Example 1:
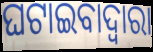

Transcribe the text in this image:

ଘଟାଇବାଦ୍ୱାରା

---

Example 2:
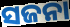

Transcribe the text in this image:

ସଜନା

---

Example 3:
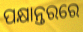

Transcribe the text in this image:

ପକ୍ଷାନ୍ତରରେ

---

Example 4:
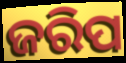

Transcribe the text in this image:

ଜରିପ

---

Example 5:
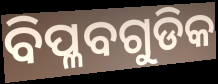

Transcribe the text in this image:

ବିପ୍ଳବଗୁଡିକ